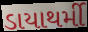
ડાયાથર્મી